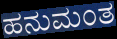
ಹನುಮಂತ